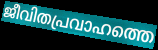
ജീവിതപ്രവാഹത്തെ